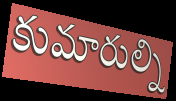
కుమారుల్ని